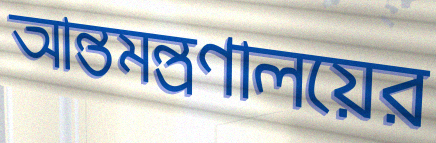
আন্তমন্ত্রণালয়ের